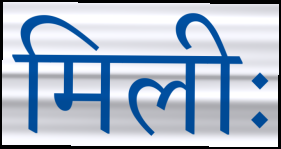
मिलीः